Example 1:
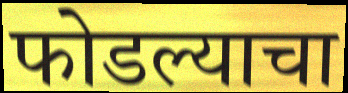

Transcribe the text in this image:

फोडल्याचा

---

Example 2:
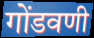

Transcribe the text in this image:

गोंडवणी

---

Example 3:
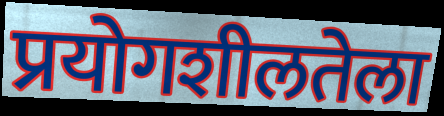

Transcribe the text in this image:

प्रयोगशीलतेला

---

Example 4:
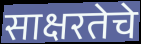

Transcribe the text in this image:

साक्षरतेचे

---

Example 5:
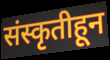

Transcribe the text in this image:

संस्कृतीहून